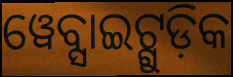
ୱେବ୍ସାଇଟ୍ଗୁଡ଼ିକ